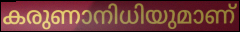
കരുണാനിധിയുമാണ്